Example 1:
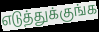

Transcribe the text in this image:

எடுத்துக்குங்க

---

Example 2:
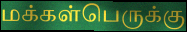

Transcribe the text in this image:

மக்கள்பெருக்கு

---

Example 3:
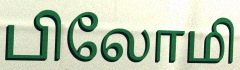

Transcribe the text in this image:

பிலோமி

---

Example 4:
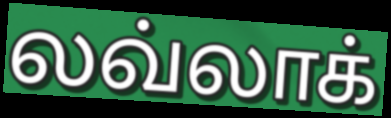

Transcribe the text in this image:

லவ்லாக்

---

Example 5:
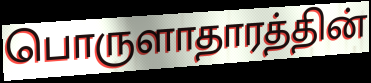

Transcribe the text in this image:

பொருளாதாரத்தின்